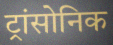
ट्रांसोनिक